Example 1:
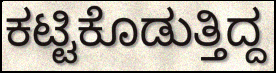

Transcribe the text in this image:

ಕಟ್ಟಿಕೊಡುತ್ತಿದ್ದ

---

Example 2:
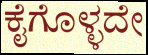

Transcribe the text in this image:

ಕೈಗೊಳ್ಳದೇ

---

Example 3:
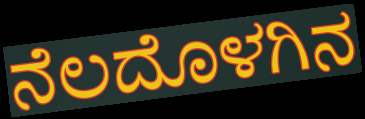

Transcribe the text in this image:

ನೆಲದೊಳಗಿನ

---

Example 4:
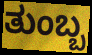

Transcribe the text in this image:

ತುಂಬ್ಬ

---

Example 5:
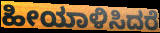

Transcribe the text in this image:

ಹೀಯಾಳಿಸಿದರೆ